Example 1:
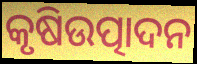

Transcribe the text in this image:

କୃଷିଉତ୍ପାଦନ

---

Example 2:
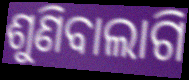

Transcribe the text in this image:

ଶୁଣିବାଲାଗି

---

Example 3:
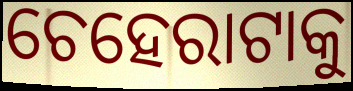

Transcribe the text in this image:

ଚେହେରାଟାକୁ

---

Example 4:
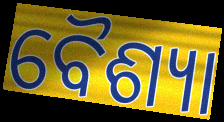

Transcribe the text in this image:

ବୈଶ୍ଯା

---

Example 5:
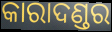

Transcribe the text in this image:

କାରାଦଣ୍ଡର